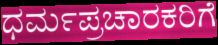
ಧರ್ಮಪ್ರಚಾರಕರಿಗೆ